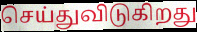
செய்துவிடுகிறது